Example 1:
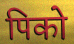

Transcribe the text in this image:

पिको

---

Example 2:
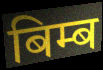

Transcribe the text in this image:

बिम्ब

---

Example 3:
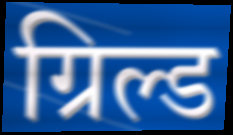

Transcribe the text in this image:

ग्रिल्ड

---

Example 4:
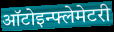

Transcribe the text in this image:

ऑटोइन्फ्लेमेटरी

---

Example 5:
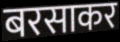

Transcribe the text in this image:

बरसाकर